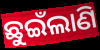
ଛୁଇଁଲାଣି